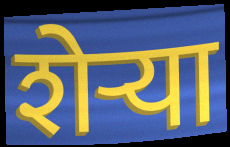
शेऱ्या